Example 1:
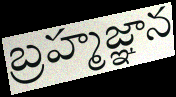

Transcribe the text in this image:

బ్రహ్మజ్ఞాన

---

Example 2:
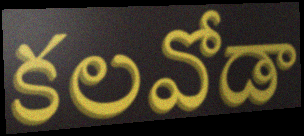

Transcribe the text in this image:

కలవోడా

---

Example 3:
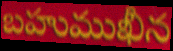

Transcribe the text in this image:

బహుముఖీన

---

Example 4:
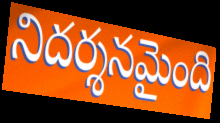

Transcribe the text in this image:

నిదర్శనమైంది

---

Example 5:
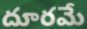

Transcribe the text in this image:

దూరమే